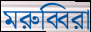
মরুব্বিরা